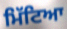
ਮਿੱਟਿਆ